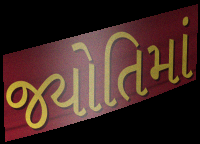
જ્યોતિમાં